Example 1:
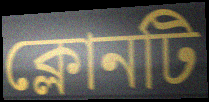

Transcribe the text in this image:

ক্লোনটি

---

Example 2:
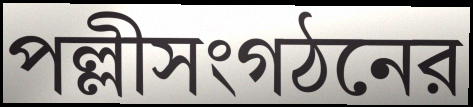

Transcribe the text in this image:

পল্লীসংগঠনের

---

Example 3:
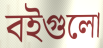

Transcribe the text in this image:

বইগুলো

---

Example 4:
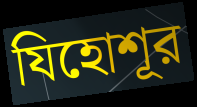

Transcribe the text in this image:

যিহোশূর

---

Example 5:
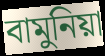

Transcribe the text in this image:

বামুনিয়া